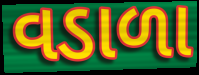
વડાળા